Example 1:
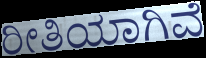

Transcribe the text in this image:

ರೀತಿಯಾಗಿವೆ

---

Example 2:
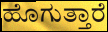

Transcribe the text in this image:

ಹೊಗುತ್ತಾರೆ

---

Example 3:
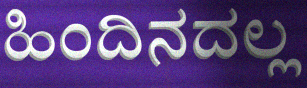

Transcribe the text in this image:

ಹಿಂದಿನದಲ್ಲ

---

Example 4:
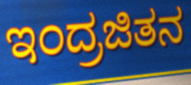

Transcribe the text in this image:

ಇಂದ್ರಜಿತನ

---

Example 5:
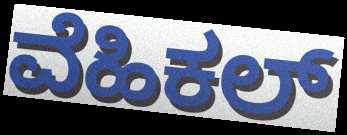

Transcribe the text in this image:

ವೆಹಿಕಲ್